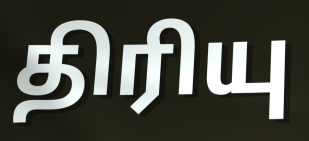
திரியு